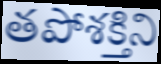
తపోశక్తిని